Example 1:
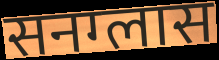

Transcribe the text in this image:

सनग्लास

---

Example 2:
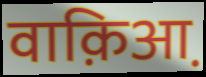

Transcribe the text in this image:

वाक़िआ़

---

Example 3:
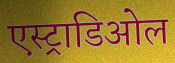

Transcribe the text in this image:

एस्ट्राडिओल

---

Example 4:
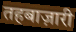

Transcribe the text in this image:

तहबाज़ारी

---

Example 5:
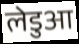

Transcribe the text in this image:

लेडुआ